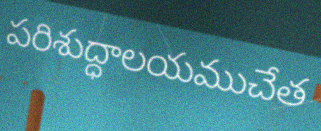
పరిశుద్ధాలయముచేత